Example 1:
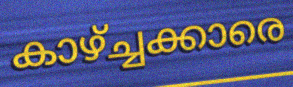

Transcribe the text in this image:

കാഴ്ച്ചക്കാരെ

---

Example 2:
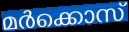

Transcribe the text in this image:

മർക്കൊസ്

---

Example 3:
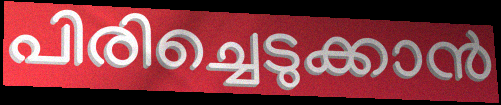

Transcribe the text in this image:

പിരിച്ചെടുക്കാൻ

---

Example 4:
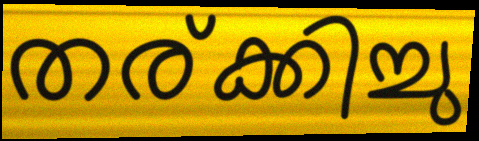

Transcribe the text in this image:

തര്ക്കിച്ചു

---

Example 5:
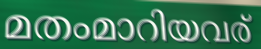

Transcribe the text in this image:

മതംമാറിയവര്